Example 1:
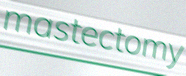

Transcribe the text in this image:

mastectomy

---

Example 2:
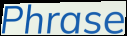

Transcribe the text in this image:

Phrase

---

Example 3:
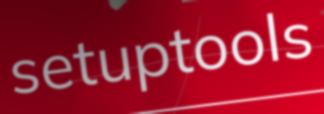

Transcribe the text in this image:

setuptools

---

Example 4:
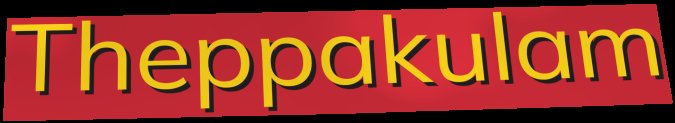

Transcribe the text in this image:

Theppakulam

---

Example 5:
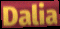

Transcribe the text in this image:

Dalia